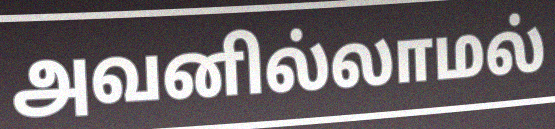
அவனில்லாமல்